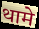
थामे